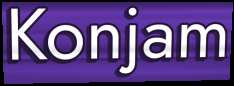
Konjam